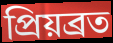
প্ৰিয়ব্ৰত